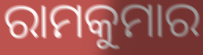
ରାମକୁମାର